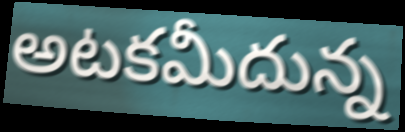
అటకమీదున్న